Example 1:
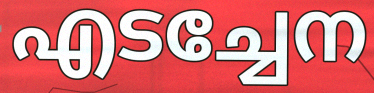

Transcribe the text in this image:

എടച്ചേന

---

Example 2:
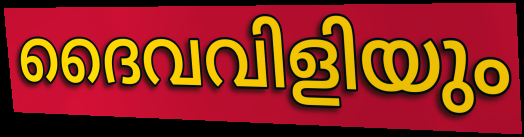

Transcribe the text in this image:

ദൈവവിളിയും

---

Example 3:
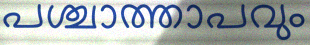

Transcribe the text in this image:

പശ്ചാത്താപവും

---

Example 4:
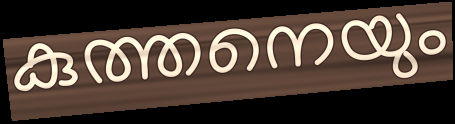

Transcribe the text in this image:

കുത്തനെയും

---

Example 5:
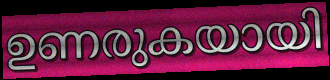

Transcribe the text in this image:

ഉണരുകയായി